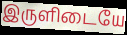
இருளிடையே